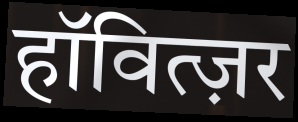
हॉवित्ज़र